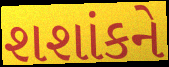
શશાંકને